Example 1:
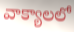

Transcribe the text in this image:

వాక్యాలలో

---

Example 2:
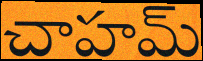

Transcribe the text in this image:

చాహమ్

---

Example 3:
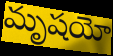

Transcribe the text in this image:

మృషయో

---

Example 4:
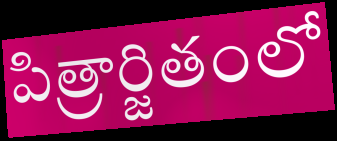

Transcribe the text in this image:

పిత్రార్జితంలో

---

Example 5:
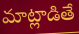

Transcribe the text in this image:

మాట్లాడితే